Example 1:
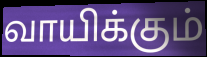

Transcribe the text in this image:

வாயிக்கும்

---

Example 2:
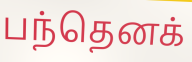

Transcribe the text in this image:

பந்தெனக்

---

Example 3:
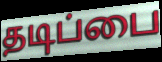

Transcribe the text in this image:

தடிப்பை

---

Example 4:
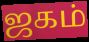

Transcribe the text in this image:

ஜகம்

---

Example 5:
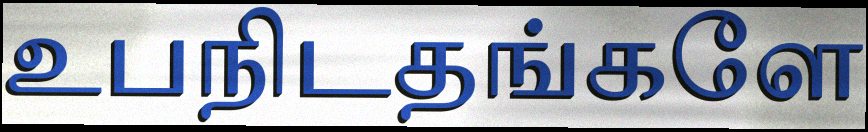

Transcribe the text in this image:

உபநிடதங்களே